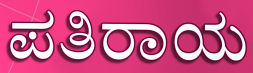
ಪತಿರಾಯ